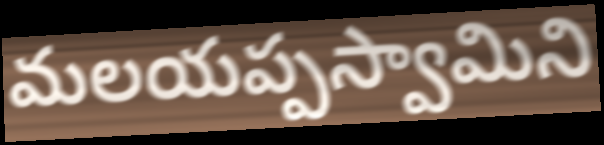
మలయప్పస్వామిని